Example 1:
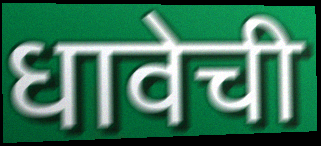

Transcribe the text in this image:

धावेची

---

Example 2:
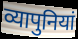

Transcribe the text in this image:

व्यापुनियां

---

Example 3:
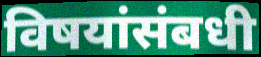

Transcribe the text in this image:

विषयांसंबधी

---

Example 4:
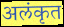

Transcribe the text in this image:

अलंकृत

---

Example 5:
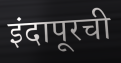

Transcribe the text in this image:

इंदापूरची